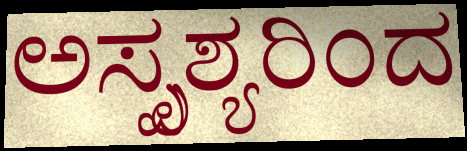
ಅಸ್ಪೃಶ್ಯರಿಂದ